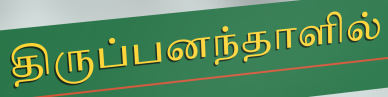
திருப்பனந்தாளில்